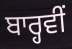
ਬਾਰ੍ਹਵੀਂ